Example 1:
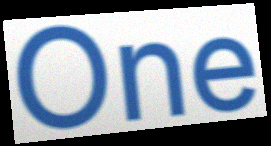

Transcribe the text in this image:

One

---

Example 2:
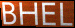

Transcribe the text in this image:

BHEL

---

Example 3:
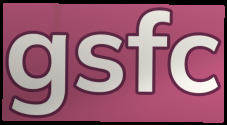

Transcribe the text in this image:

gsfc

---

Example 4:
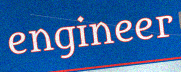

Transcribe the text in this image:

engineer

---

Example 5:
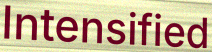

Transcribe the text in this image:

Intensified